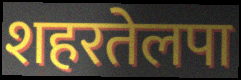
शहरतेलपा